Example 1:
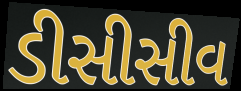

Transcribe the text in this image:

ડીસીસીવ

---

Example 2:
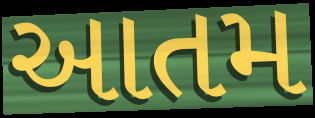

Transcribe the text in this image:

આતમ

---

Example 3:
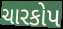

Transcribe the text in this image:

ચારકોપ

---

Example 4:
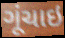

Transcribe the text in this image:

ગૂંચાઇ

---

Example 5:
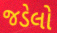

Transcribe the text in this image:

જડેલો